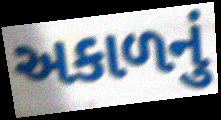
અકાળનું